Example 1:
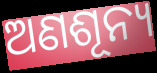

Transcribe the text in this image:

ଅଣଶୂନ୍ୟ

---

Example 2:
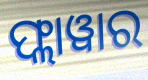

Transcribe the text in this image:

ଫ୍ଲାୱାର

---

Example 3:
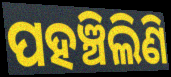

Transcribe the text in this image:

ପହଞ୍ଚିଲିଣି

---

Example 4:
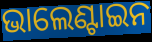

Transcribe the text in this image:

ଭାଲେଣ୍ଟାଇନ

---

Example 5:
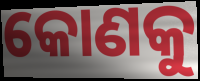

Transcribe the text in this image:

କୋଣକୁ